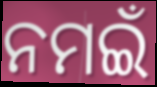
ନମଇଁ